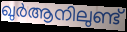
ഖുർആനിലുണ്ട്